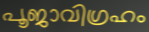
പൂജാവിഗ്രഹം